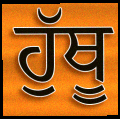
ਹੁੱਥੂ